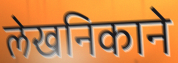
लेखनिकाने